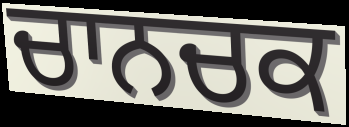
ਚਾਨਚਕ